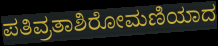
ಪತಿವ್ರತಾಶಿರೋಮಣಿಯಾದ